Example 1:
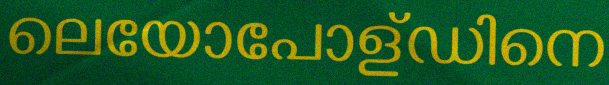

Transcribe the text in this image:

ലെയോപോള്ഡിനെ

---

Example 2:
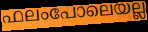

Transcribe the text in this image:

ഫലംപോലെയല്ല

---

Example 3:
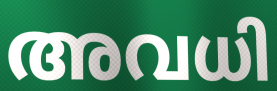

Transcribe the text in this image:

അവധി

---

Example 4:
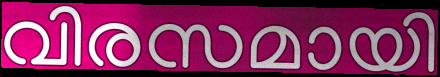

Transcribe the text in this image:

വിരസമായി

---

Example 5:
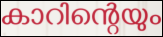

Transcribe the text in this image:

കാറിന്റെയും